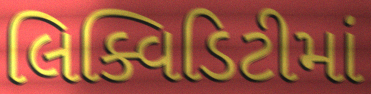
લિક્વિડિટીમાં